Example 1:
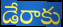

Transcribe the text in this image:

డేరాకు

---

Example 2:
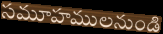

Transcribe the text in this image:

సమూహములనుండి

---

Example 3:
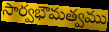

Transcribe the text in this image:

సార్వభౌమత్వము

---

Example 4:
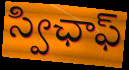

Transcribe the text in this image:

స్విఛాఫ్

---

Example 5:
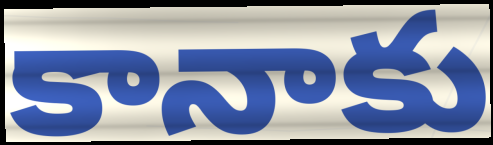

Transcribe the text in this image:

కానాకు